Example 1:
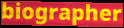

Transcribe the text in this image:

biographer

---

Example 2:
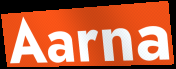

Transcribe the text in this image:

Aarna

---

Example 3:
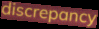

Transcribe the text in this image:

discrepancy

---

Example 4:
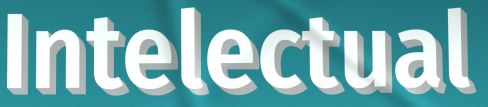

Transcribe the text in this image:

Intelectual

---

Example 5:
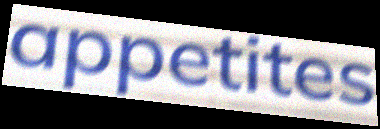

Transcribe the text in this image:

appetites